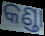
କଣ୍ଡା